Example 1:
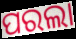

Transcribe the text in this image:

ପରଲା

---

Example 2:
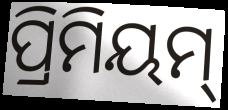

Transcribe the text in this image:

ପ୍ରିମିୟମ୍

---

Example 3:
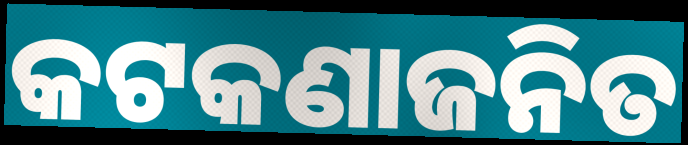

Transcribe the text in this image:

କଟକଣାଜନିତ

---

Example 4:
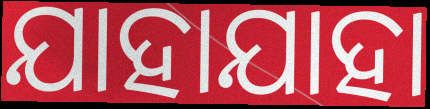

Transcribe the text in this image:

ଯାହାଯାହା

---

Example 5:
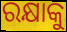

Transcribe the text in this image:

ରକ୍ଷାକୁ